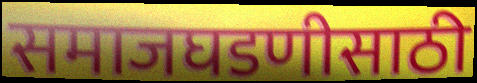
समाजघडणीसाठी